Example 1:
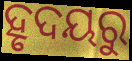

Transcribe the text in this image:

ହୃଦୟରୁ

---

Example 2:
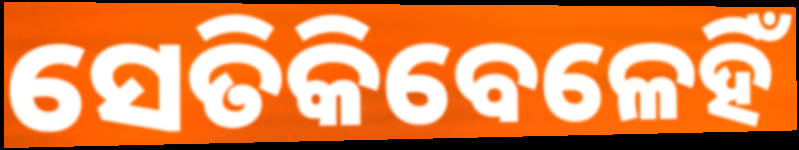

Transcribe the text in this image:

ସେତିକିବେଳେହିଁ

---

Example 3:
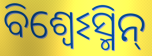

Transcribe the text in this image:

ବିଶ୍ଵେଽସ୍ମିନ୍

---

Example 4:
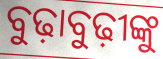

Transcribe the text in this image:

ବୁଢ଼ାବୁଢ଼ୀଙ୍କୁ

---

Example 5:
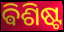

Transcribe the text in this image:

ଵିଶିଷ୍ଟ